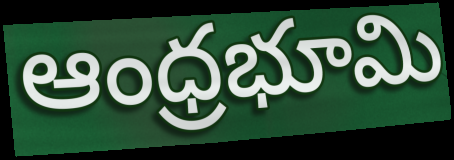
ఆంధ్రభూమి